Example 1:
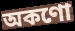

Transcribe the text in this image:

অকণো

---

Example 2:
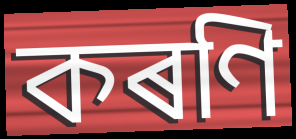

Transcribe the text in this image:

কৰণি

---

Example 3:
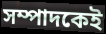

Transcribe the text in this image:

সম্পাদকেই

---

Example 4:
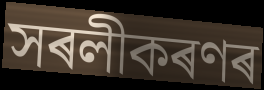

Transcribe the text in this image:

সৰলীকৰণৰ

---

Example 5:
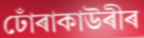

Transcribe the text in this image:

ঢোঁৰাকাউৰীৰ